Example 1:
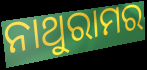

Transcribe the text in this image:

ନାଥୁରାମର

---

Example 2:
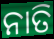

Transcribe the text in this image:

ନାତି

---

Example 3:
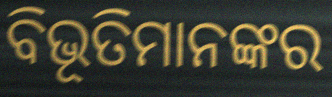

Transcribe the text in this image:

ବିଭୂତିମାନଙ୍କର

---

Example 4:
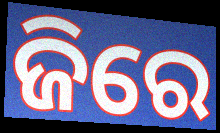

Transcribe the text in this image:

ଜିରେ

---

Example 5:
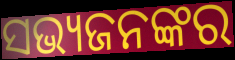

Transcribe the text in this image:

ସଭ୍ୟଜନଙ୍କର